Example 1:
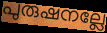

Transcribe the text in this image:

പുരുഷനല്ലേ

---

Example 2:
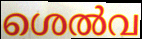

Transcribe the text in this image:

ശെൽവ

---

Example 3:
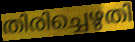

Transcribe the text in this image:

തിരിച്ചെഴുതി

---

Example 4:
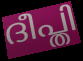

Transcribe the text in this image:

ദീപ്തി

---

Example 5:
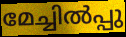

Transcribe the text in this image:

മേച്ചിൽപ്പു